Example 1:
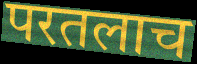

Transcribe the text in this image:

परतलाच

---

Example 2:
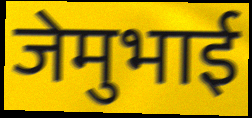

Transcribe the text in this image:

जेमुभाई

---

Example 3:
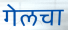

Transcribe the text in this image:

गेलचा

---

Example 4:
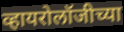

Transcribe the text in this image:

व्हायरोलॉजीच्या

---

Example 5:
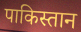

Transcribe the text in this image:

पाकिस्तान